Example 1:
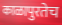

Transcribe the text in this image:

काळापुरतेच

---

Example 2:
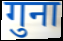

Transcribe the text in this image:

गुना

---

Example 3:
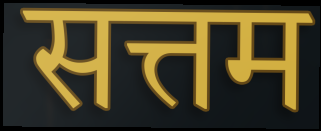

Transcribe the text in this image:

सत्तम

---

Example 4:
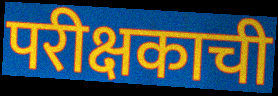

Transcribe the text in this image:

परीक्षकाची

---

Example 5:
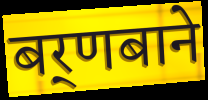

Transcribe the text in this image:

बर्णबाने